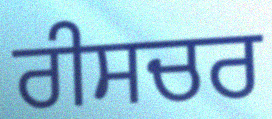
ਰੀਸਚਰ